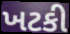
ખટકી